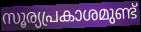
സൂര്യപ്രകാശമുണ്ട്